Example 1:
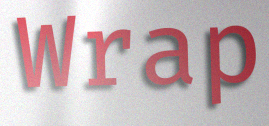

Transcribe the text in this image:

Wrap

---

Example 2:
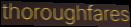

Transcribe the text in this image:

thoroughfares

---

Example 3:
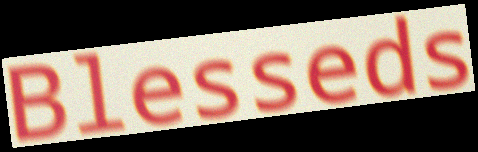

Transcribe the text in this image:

Blesseds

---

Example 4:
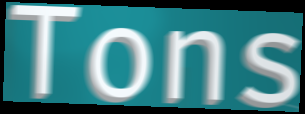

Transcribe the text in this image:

Tons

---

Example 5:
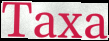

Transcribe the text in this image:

Taxa